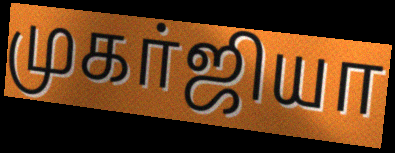
முகர்ஜியா